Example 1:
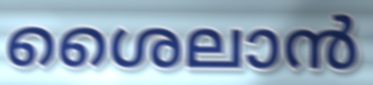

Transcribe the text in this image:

ശൈലാൻ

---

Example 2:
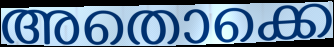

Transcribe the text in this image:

അതൊക്കെ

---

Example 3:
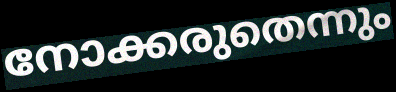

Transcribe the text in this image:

നോക്കരുതെന്നും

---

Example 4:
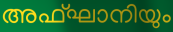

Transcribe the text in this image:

അഫ്ഘാനിയും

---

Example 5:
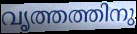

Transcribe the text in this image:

വൃത്തത്തിനു